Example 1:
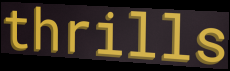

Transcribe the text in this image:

thrills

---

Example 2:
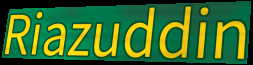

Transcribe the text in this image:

Riazuddin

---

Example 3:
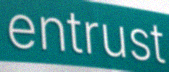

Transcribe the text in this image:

entrust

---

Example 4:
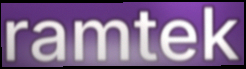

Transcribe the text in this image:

ramtek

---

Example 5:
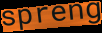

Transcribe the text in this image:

spreng